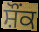
ਸ਼ੌਂਕ